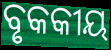
ବୃକକୀୟ